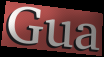
Gua